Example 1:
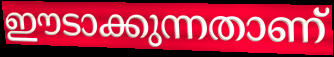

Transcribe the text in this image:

ഈടാക്കുന്നതാണ്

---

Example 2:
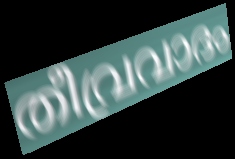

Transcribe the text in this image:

തീവ്രവാദം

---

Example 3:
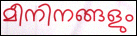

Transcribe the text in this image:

മീനിനങ്ങളും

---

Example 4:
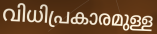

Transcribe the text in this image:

വിധിപ്രകാരമുള്ള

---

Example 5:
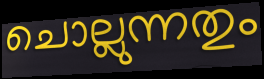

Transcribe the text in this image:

ചൊല്ലുന്നതും